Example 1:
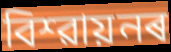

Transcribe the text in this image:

বিশ্ৱায়নৰ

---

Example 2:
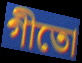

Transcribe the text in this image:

গীতো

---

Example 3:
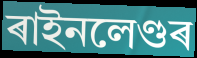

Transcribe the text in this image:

ৰাইনলেণ্ডৰ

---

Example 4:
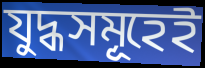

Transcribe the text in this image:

যুদ্ধসমূহেই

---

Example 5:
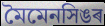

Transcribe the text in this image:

মৈমেনসিঙৰ